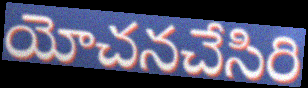
యోచనచేసిరి